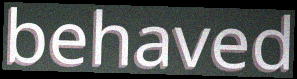
behaved